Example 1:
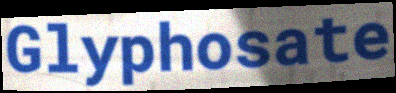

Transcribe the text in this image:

Glyphosate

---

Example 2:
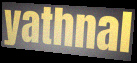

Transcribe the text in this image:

yathnal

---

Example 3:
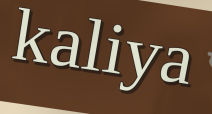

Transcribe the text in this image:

kaliya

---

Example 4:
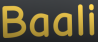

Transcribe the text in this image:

Baali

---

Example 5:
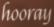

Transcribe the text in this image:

hooray